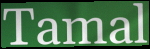
Tamal